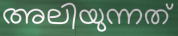
അലിയുന്നത്